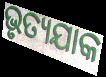
ଭୃତ୍ୟଯାକ